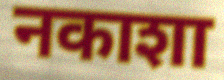
नकाशा